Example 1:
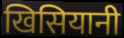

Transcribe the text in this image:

खिसियानी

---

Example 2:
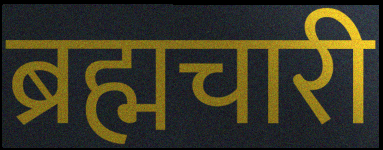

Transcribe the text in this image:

ब्रह्मचारी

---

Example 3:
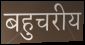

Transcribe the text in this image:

बहुचरीय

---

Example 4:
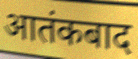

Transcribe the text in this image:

आतंकबाद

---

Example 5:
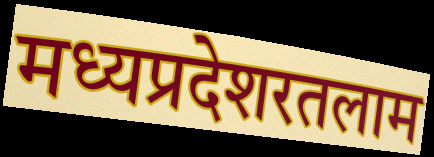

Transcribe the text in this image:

मध्यप्रदेशरतलाम